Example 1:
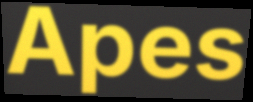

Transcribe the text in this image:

Apes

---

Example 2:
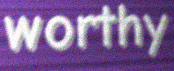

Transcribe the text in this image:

worthy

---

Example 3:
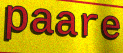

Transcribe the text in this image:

paare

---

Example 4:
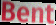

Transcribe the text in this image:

Bent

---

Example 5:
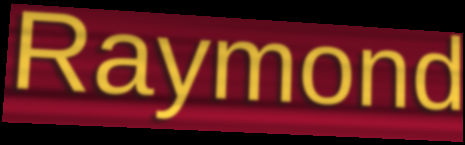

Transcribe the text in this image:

Raymond